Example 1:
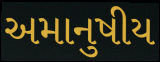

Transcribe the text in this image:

અમાનુષીય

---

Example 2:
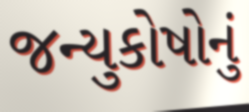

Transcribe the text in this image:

જન્યુકોષોનું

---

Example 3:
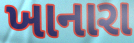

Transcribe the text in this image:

ખાનારા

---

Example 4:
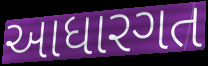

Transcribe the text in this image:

આધારગત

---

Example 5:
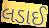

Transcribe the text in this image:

લડાઈ